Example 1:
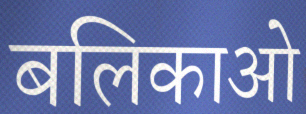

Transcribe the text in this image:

बलिकाओ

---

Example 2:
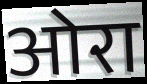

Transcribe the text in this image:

ओरा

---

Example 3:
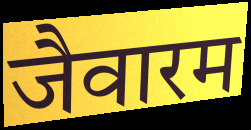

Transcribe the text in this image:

जैवारम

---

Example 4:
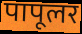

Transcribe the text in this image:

पापूलर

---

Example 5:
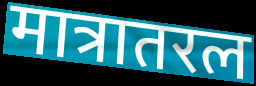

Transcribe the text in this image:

मात्रातरल